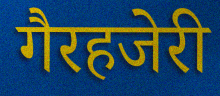
गैरहजेरी